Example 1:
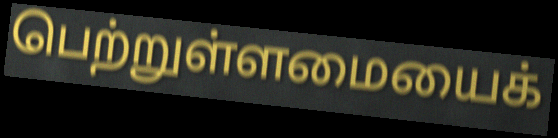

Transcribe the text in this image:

பெற்றுள்ளமையைக்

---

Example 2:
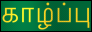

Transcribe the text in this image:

காழ்ப்பு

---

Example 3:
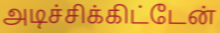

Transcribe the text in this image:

அடிச்சிக்கிட்டேன்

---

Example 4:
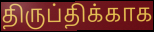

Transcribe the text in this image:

திருப்திக்காக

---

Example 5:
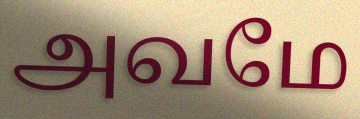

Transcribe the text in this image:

அவமே